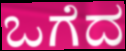
ಒಗೆದ